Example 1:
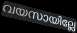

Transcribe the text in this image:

വയസായില്ലേ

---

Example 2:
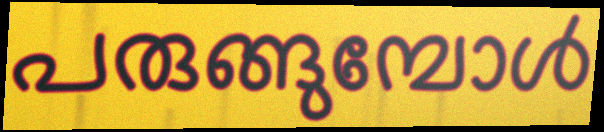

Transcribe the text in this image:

പരുങ്ങുമ്പോൾ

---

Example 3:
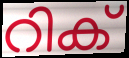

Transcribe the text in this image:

റിക്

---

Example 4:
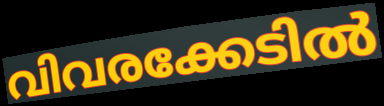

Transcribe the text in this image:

വിവരക്കേടിൽ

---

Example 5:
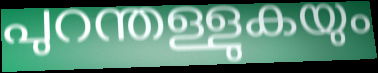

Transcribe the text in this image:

പുറന്തള്ളുകയും